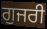
ਗੁਜਰੀ